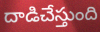
దాడిచేస్తుంది